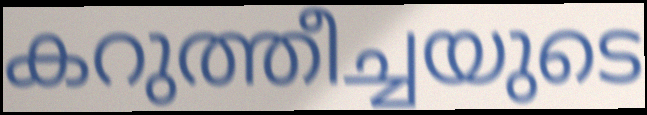
കറുത്തീച്ചയുടെ